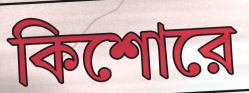
কিশোরে